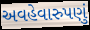
અવહેવારુપણું